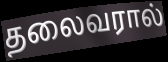
தலைவரால்